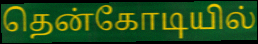
தென்கோடியில்